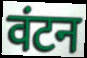
वंटन